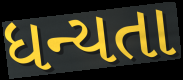
ધન્યતા